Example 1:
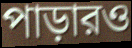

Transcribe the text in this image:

পাড়ারও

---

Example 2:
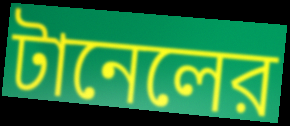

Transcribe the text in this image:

টানেলের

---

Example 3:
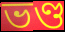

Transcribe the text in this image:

ভণ্ড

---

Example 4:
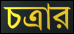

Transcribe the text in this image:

চত্রার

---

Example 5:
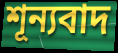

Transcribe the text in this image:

শূন্যবাদ